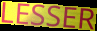
LESSER